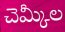
చెమ్కీల